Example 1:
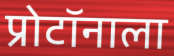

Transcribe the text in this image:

प्रोटॉनाला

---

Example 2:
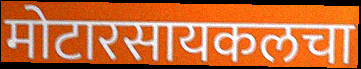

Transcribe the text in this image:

मोटारसायकलचा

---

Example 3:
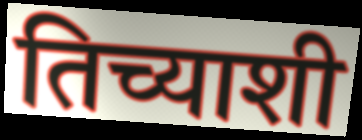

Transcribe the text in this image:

तिच्याशी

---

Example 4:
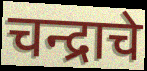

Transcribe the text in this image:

चन्द्राचे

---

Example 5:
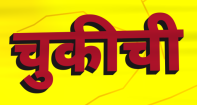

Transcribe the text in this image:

चुकीची